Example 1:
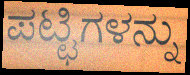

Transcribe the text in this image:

ಪಟ್ಟಿಗಳನ್ನು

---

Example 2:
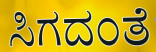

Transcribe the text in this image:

ಸಿಗದಂತೆ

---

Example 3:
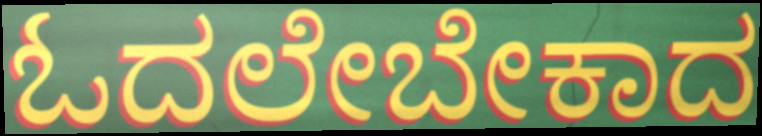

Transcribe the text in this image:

ಓದಲೇಬೇಕಾದ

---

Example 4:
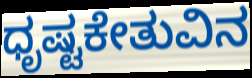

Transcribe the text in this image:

ಧೃಷ್ಟಕೇತುವಿನ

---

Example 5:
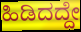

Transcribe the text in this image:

ಹಿಡಿದದ್ದೇ